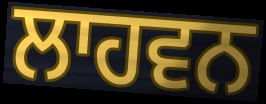
ਲਾਹਵਨ